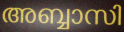
അബ്ബാസി